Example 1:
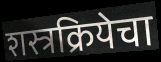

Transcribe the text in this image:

शस्त्रक्रियेचा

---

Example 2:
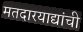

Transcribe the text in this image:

मतदारयाद्यांची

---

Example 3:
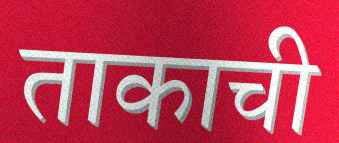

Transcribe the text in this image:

ताकाची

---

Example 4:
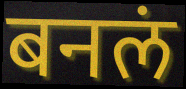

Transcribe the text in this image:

बनलं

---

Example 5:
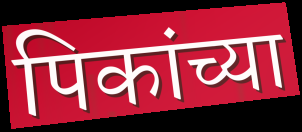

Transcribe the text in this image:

पिकांच्या